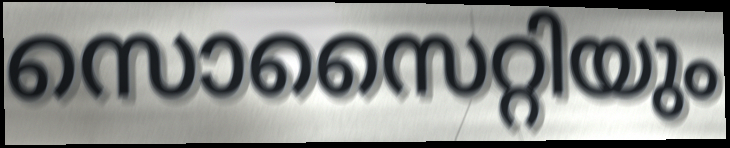
സൊസൈറ്റിയും